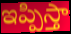
ఇప్పిస్తా